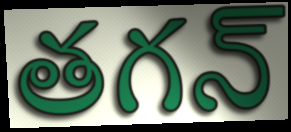
తగన్